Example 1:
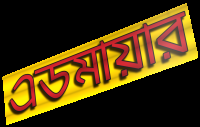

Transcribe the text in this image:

এডমায়ার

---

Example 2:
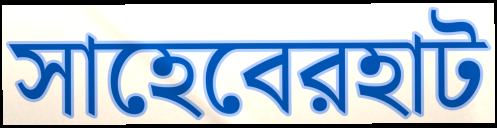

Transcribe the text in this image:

সাহেবেরহাট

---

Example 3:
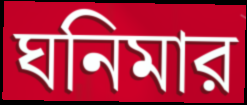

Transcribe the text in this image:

ঘনিমার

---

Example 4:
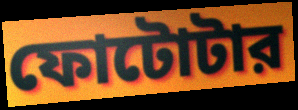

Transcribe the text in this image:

ফোটোটার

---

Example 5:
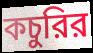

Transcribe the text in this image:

কচুরির